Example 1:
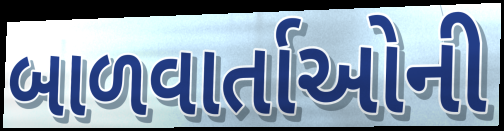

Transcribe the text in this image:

બાળવાર્તાઓની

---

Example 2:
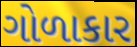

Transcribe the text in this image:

ગોળાકાર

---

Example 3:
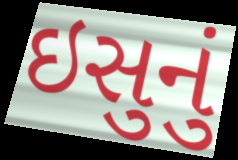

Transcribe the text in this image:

ઇસુનું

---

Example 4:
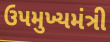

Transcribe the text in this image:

ઉપમુખ્યમંત્રી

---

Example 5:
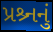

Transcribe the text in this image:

પ્રશ્ર્નનું